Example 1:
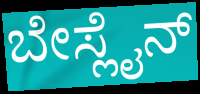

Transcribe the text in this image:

ಬೇಸ್ಲೈನ್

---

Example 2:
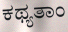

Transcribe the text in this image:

ಕಥ್ಯತಾಂ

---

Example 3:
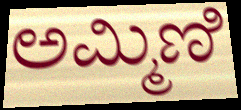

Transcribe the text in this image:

ಅಮ್ಮಿಣಿ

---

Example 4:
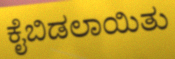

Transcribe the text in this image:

ಕೈಬಿಡಲಾಯಿತು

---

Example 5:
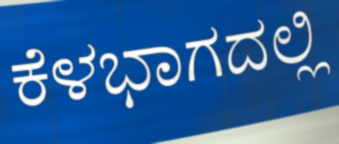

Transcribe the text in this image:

ಕೆಳಭಾಗದಲ್ಲಿ